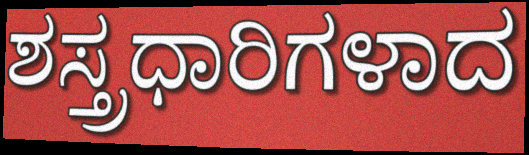
ಶಸ್ತ್ರಧಾರಿಗಳಾದ